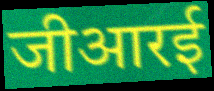
जीआरई